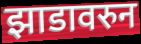
झाडावरुन